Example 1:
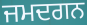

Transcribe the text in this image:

ਜਮਦਗਨ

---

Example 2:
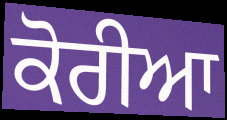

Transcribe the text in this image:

ਕੋਰੀਆ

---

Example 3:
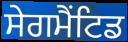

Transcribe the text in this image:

ਸੇਗਮੈਂਟਿਡ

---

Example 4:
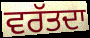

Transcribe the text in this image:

ਵਰੱਤਦਾ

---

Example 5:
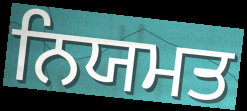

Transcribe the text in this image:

ਨਿਯਮਤ